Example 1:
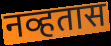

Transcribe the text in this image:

नव्हतास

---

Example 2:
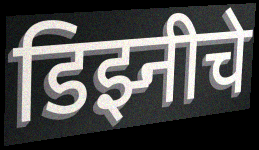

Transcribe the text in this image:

डिझ्नीचे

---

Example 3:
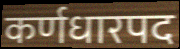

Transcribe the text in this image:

कर्णधारपद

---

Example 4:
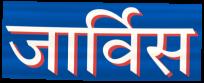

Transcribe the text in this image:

जार्विस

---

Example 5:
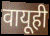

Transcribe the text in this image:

वायूही